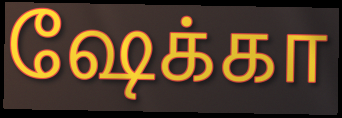
ஷேக்கா